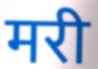
मरी